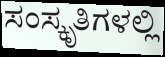
ಸಂಸ್ಕೃತಿಗಳಲ್ಲಿ